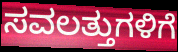
ಸವಲತ್ತುಗಳಿಗೆ